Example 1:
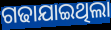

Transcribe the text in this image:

ଗଢାଯାଇଥିଲା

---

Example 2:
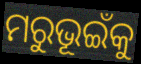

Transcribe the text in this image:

ମରୁଭୂଇଁକୁ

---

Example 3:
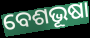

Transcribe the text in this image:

ବେଶଭୂଷା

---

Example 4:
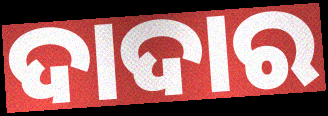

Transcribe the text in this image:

ଦାଦାର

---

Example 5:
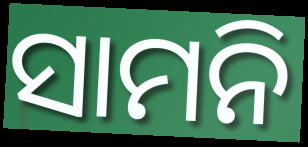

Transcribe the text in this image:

ସାମନି